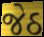
જેઠ